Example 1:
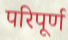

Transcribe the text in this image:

परिपूर्ण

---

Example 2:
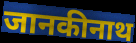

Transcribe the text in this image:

जानकीनाथ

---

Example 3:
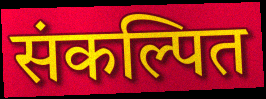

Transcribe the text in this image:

संकल्पित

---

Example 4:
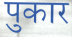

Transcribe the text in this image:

पुकार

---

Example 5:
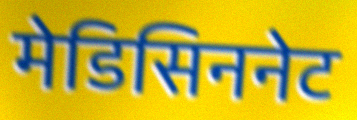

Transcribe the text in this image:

मेडिसिननेट